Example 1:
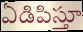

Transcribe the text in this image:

ఏడిపిస్తూ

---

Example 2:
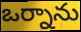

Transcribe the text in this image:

ఒర్నాను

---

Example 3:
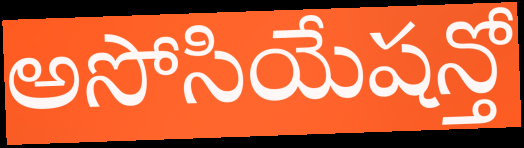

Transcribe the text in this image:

అసోసియేషన్తో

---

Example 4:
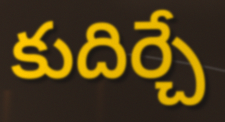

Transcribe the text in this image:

కుదిర్చే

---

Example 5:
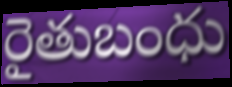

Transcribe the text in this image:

రైతుబంధు